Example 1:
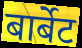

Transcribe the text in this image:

बार्बेट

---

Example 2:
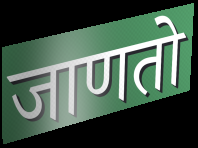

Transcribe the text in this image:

जाणतो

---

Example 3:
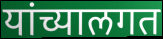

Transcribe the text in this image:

यांच्यालगत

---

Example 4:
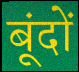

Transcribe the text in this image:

बूंदों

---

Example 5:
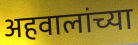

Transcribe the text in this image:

अहवालांच्या